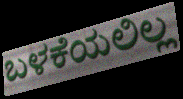
ಬಳಕೆಯಲಿಲ್ಲ